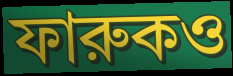
ফারুকও